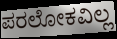
ಪರಲೋಕವಿಲ್ಲ